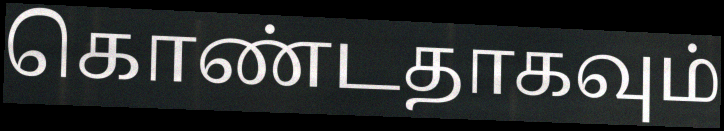
கொண்டதாகவும்